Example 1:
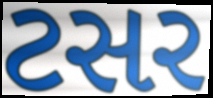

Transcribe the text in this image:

ટસર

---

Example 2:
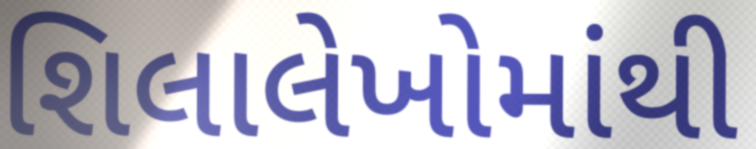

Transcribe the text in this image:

શિલાલેખોમાંથી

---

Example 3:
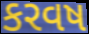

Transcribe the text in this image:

કરવષ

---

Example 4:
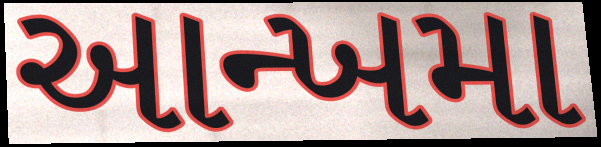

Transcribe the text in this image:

આન્ખમા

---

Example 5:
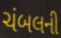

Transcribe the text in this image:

ચંબલની